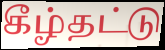
கீழ்தட்டு